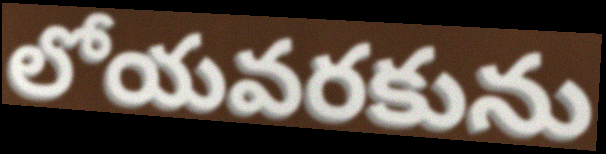
లోయవరకును